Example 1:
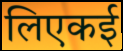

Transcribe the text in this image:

लिएकई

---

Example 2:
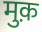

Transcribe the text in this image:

मुक़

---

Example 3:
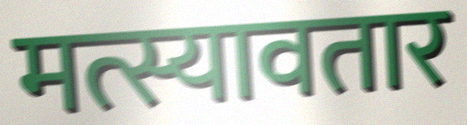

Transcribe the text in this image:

मत्स्यावतार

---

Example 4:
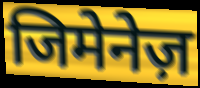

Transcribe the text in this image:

जिमेनेज़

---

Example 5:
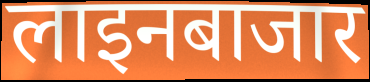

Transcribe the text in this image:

लाइनबाजार